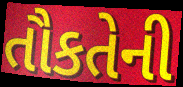
તૌકતેની